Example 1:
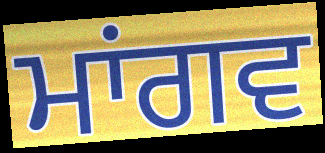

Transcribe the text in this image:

ਮਾਂਗਵ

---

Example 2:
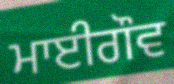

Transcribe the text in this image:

ਮਾਈਗੌਵ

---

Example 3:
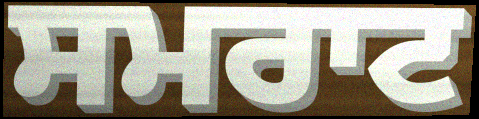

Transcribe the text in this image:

ਸਮਰਾਟ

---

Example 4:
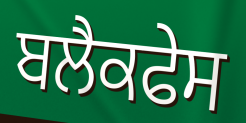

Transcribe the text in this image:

ਬਲੈਕਫੇਸ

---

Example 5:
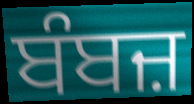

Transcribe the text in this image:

ਬੰਬਜ਼